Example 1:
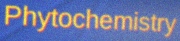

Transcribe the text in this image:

Phytochemistry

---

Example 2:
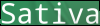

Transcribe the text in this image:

Sativa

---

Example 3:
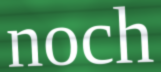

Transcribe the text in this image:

noch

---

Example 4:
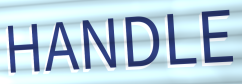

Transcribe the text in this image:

HANDLE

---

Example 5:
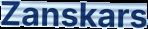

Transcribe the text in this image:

Zanskars